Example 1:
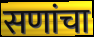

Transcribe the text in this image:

सणांचा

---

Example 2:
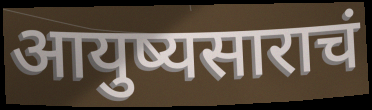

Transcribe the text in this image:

आयुष्यसाराचं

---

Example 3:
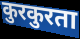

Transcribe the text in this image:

कुरकुरता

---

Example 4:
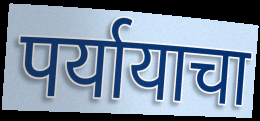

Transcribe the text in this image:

पर्यायाचा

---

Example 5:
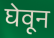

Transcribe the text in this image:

घेवून